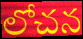
లోచన